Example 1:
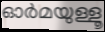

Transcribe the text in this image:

ഓർമയുള്ളൂ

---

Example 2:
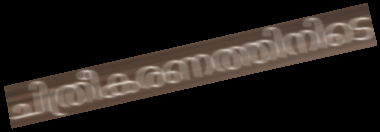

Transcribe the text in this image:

ചിത്രീകരണത്തിനിടെ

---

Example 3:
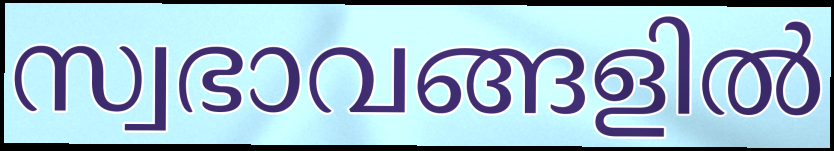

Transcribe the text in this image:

സ്വഭാവങ്ങളിൽ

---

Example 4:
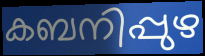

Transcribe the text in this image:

കബനിപ്പുഴ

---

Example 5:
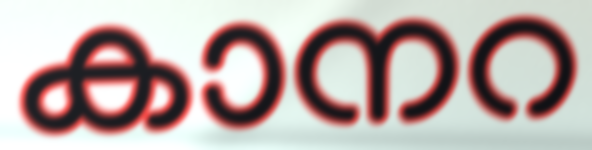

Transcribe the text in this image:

കാനറ